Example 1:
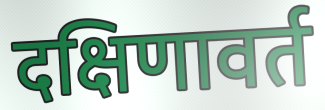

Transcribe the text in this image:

दक्षिणावर्त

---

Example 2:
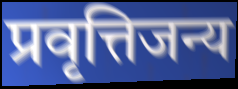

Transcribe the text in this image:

प्रवृत्तिजन्य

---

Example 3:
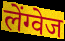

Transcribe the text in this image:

लेंग्वेज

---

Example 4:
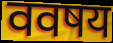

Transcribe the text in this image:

ववषय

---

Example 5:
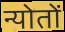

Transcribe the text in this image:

न्योतों